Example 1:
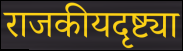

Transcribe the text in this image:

राजकीयदृष्ट्या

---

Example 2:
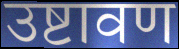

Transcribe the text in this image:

उष्टावण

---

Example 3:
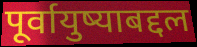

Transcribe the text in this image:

पूर्वायुष्याबद्दल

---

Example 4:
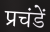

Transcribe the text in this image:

प्रचंडें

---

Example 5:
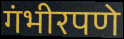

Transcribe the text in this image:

गंभीरपणे